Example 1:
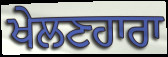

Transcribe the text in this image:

ਖੇਲਣਹਾਰਾ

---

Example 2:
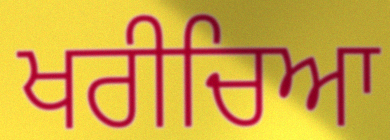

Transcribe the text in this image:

ਖਰੀਚਿਆ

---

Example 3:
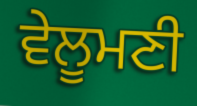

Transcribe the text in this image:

ਵੇਲੂਮਣੀ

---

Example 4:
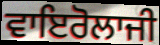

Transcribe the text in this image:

ਵਾਇਰੋਲਾਜੀ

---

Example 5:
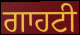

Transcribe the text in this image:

ਗਾਹਟੀ